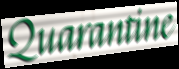
Quarantine